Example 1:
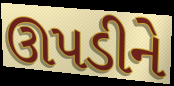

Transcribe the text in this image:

ઊપડીને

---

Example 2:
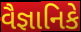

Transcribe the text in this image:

વૈજ્ઞાનિકે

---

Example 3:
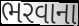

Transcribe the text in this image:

ભરવાના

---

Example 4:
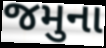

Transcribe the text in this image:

જમુના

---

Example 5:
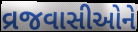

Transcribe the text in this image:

વ્રજવાસીઓને